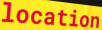
location